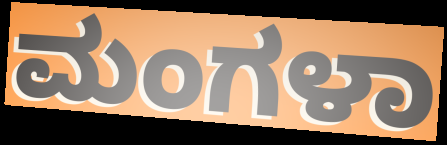
ಮಂಗಳಾ